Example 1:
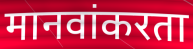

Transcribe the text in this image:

मानवांकरता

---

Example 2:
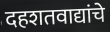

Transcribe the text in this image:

दहशतवाद्यांचे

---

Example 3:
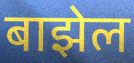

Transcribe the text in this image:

बाझेल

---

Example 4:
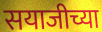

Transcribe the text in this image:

सयाजीच्या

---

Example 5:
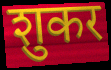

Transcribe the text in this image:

शुकर